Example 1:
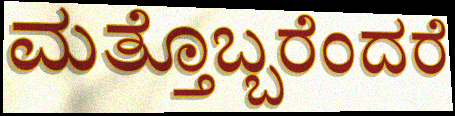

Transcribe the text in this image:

ಮತ್ತೊಬ್ಬರೆಂದರೆ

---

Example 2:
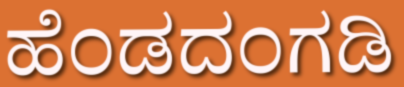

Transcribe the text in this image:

ಹೆಂಡದಂಗಡಿ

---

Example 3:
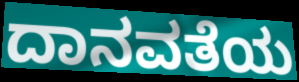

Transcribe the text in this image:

ದಾನವತೆಯ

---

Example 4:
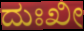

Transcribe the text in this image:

ದುಃಖೀ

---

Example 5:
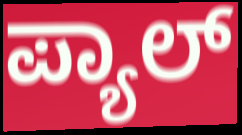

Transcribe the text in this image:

ಪ್ಯಾಲ್